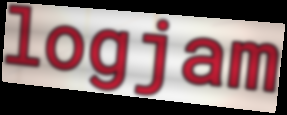
logjam